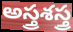
అస్త్రశస్త్ర